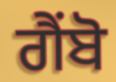
ਗੈਂਬੋ